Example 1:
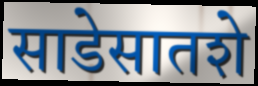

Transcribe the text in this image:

साडेसातशे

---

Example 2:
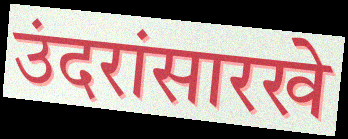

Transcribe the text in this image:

उंदरांसारखे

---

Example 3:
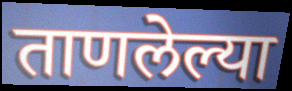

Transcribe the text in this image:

ताणलेल्या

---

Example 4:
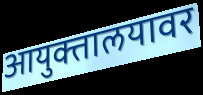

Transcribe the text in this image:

आयुक्तालयावर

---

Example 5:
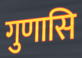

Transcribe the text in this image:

गुणासि